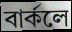
বার্কলে